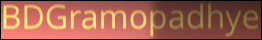
BDGramopadhye